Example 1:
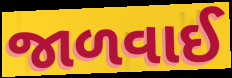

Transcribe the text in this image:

જાળવાઈ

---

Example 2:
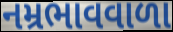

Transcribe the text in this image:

નમ્રભાવવાળા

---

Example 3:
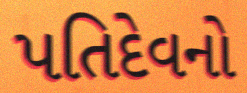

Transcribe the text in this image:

પતિદેવનો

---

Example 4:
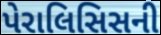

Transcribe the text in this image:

પેરાલિસિસની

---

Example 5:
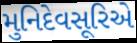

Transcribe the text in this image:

મુનિદેવસૂરિએ